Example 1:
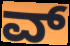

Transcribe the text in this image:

ವ್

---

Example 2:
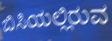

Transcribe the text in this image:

ಬಿಸಿಯಲ್ಲಿರುವ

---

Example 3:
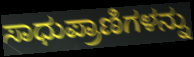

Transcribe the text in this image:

ಸಾಧುಪ್ರಾಣಿಗಳನ್ನು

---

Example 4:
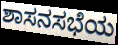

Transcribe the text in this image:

ಶಾಸನಸಭೆಯ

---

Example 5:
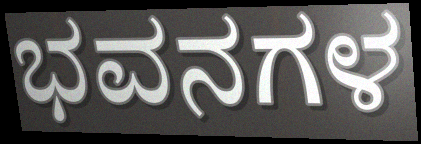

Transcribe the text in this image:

ಭವನಗಳ